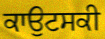
ਕਾਉਟਸਕੀ